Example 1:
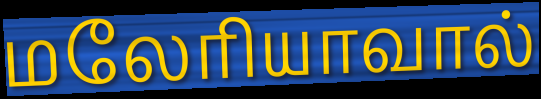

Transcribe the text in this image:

மலேரியாவால்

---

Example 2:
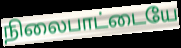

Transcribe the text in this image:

நிலைபாட்டையே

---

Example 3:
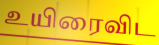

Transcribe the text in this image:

உயிரைவிட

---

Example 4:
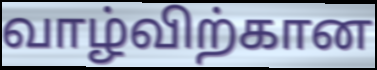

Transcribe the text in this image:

வாழ்விற்கான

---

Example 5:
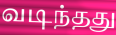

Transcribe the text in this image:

வடிந்தது